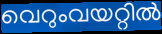
വെറുംവയറ്റിൽ